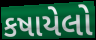
કષાયેલો